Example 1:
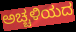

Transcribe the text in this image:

ಅಚ್ಚಳಿಯದ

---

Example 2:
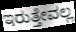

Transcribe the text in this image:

ಇರುತ್ತೇವಲ್ಲ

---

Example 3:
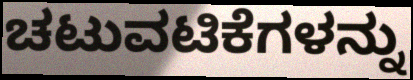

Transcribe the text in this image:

ಚಟುವಟಿಕೆಗಳನ್ನು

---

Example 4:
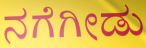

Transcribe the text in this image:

ನಗೆಗೀಡು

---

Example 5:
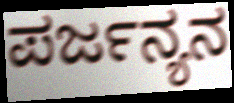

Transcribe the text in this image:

ಪರ್ಜನ್ಯನ